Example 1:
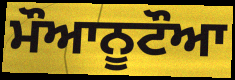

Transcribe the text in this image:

ਮੌਆਨੂਟੌਆ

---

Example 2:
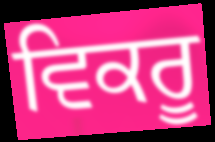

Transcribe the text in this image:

ਵਿਕਰੂ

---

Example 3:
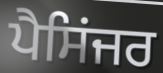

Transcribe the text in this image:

ਪੈਸਿਂਜਰ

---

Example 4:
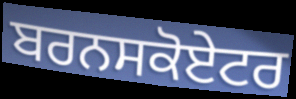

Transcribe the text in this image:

ਬਰਨਸਕੋਏਟਰ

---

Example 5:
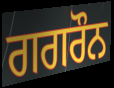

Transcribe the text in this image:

ਗਗਰੌਨ